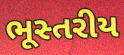
ભૂસ્તરીય